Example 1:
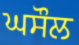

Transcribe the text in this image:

ਘਸੌਲ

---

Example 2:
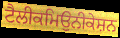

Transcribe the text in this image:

ਟੈਲੀਕਮਿਉਨੀਕੇਸ਼ਨ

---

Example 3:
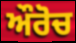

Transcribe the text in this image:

ਔਰੋਚ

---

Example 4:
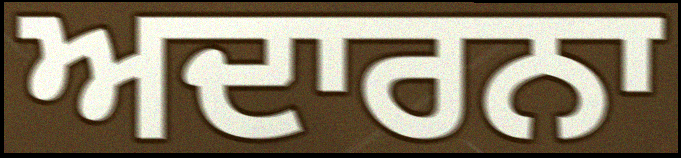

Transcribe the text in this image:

ਅਦਾਰਨਾ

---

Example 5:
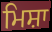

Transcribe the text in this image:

ਮਿਸ਼ਾ